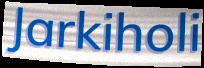
Jarkiholi